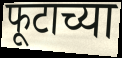
फूटाच्या